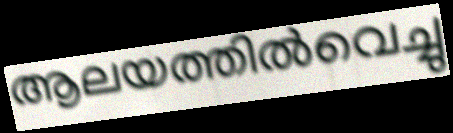
ആലയത്തിൽവെച്ചു